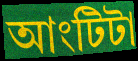
আংটিটা